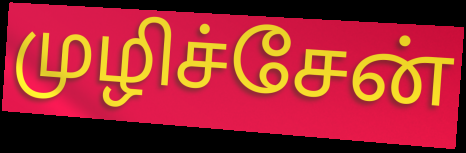
முழிச்சேன்